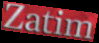
Zatim